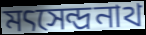
মৎসেন্দ্রনাথ